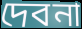
দেবনা